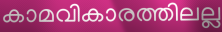
കാമവികാരത്തിലല്ല